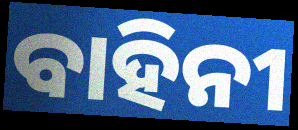
ବାହିନୀ